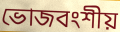
ভোজবংশীয়